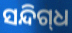
ସନ୍ଦିଗ୍‌ଧ